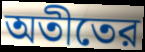
অতীতের